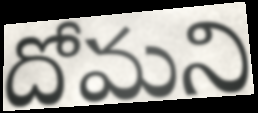
దోమని